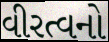
વીરત્વનો